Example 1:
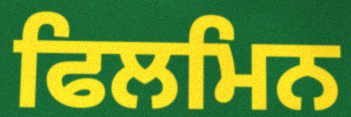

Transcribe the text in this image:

ਫਿਲਮਿਨ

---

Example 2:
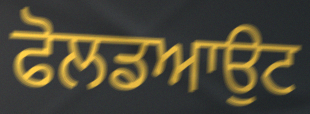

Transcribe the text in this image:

ਫੋਲਡਆਉਟ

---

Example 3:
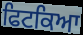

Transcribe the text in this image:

ਫਿਟਕਿਆ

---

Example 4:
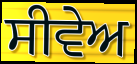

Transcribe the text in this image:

ਸੀਵੇਅ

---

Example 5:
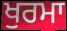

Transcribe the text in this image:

ਖੁਰਮਾ